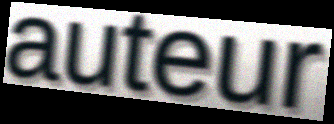
auteur